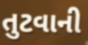
તુટવાની